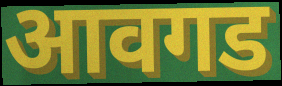
आवगड